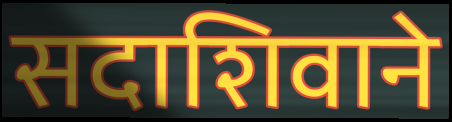
सदाशिवाने